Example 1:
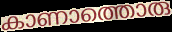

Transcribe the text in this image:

കാണാത്തൊരു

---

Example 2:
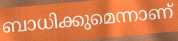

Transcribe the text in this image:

ബാധിക്കുമെന്നാണ്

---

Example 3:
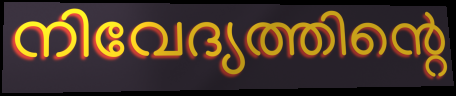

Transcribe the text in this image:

നിവേദ്യത്തിന്റെ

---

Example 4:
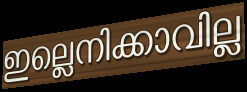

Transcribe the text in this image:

ഇല്ലെനിക്കാവില്ല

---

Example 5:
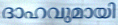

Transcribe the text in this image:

ദാഹവുമായി